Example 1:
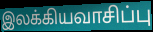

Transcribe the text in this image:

இலக்கியவாசிப்பு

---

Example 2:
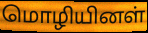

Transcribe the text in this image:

மொழியினள்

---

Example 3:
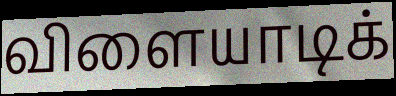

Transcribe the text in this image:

விளையாடிக்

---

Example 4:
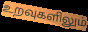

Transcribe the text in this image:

உறவுகளிலும்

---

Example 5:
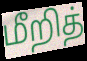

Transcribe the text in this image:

மீறித்